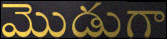
మొడుగా